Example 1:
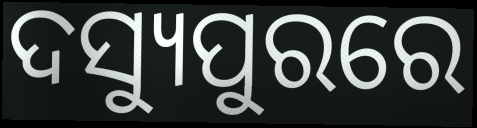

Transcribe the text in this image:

ଦସ୍ୟୁପୁରରେ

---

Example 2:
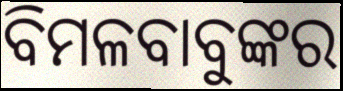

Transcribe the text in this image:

ବିମଳବାବୁଙ୍କର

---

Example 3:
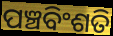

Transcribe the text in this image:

ପଞ୍ଚବିଂଶତି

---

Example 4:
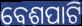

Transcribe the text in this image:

ବେଶପାଟି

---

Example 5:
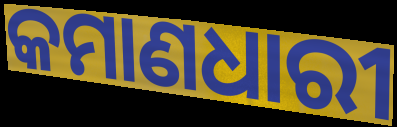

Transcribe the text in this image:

କମାଣଧାରୀ